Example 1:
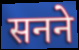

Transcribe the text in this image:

सनने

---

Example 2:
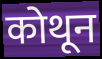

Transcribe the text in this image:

कोथून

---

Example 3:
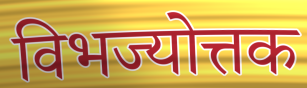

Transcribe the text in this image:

विभज्योत्तक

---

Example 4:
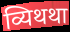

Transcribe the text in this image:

व्यिथथा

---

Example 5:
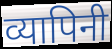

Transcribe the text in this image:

व्यापिनी